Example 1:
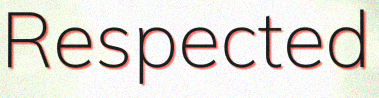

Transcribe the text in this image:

Respected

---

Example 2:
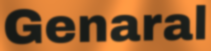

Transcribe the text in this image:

Genaral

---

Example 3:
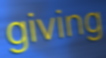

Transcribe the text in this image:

giving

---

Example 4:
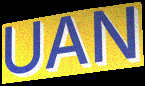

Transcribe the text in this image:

UAN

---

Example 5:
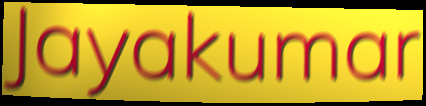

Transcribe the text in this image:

Jayakumar